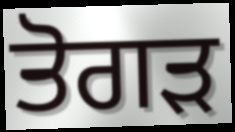
ਤੋਗੜ